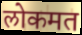
लोकमत